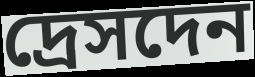
দ্রেসদেন